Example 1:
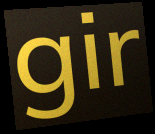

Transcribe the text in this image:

gir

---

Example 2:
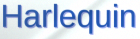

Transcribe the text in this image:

Harlequin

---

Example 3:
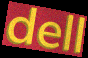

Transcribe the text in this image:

dell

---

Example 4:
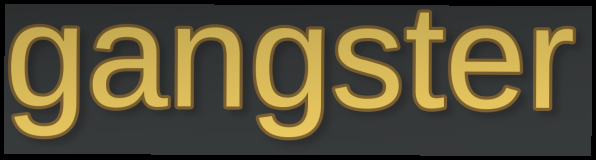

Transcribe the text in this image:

gangster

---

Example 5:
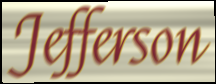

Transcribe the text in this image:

Jefferson